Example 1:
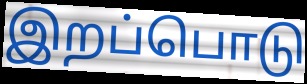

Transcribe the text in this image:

இறப்பொடு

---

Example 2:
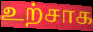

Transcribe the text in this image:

உற்சாக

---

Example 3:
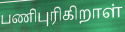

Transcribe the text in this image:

பணிபுரிகிறாள்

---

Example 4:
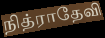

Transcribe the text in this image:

நித்ராதேவி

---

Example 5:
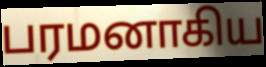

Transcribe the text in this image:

பரமனாகிய